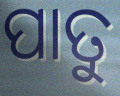
ପାତୁ